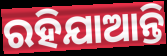
ରହିଯାଆନ୍ତି